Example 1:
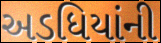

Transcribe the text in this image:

અડધિયાંની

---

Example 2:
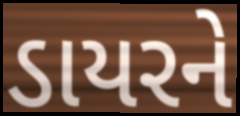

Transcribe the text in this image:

ડાયરને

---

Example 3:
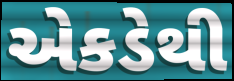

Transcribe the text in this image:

એકડેથી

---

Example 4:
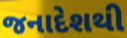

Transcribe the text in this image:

જનાદેશથી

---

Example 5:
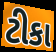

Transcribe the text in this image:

ટીકા